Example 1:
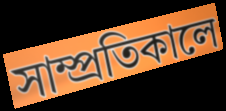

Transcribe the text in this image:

সাম্প্রতিকালে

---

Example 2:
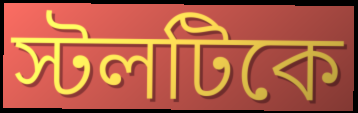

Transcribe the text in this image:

স্টলটিকে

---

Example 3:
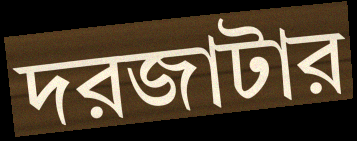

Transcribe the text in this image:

দরজাটার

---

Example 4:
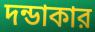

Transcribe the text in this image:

দন্ডাকার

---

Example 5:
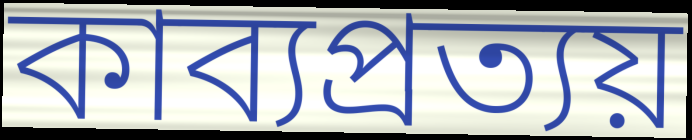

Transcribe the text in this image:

কাব্যপ্রত্যয়